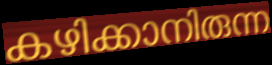
കഴിക്കാനിരുന്ന